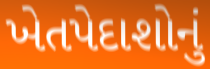
ખેતપેદાશોનું